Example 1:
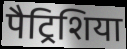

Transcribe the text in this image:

पैट्रिशिया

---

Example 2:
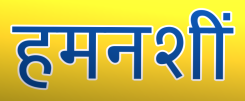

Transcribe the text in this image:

हमनशीं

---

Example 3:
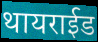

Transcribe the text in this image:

थायराईड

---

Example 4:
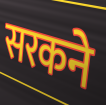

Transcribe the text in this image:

सरकने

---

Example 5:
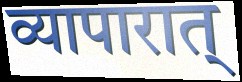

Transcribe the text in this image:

व्यापारात्